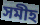
সমীহ